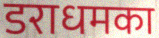
डराधमका